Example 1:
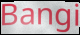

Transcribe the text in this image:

Bangi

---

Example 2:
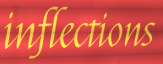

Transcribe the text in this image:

inflections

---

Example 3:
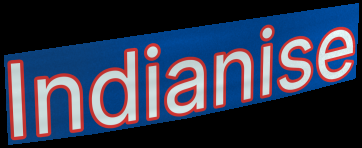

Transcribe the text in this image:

Indianise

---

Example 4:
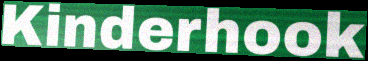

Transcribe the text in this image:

Kinderhook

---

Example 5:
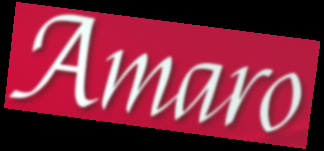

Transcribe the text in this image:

Amaro